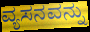
ವ್ಯಸನವನ್ನು